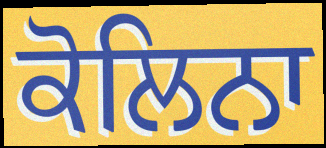
ਕੋਲਿਨਾ